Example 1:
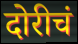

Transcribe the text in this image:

दोरीचं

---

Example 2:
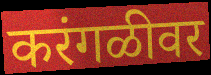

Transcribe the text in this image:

करंगळीवर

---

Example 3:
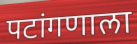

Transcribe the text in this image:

पटांगणाला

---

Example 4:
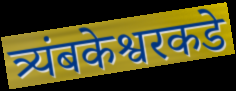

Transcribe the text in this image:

त्र्यंबकेश्वरकडे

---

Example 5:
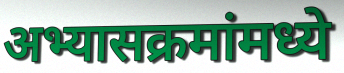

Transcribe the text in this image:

अभ्यासक्रमांमध्ये